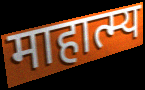
माहात्म्य